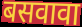
बसवावा